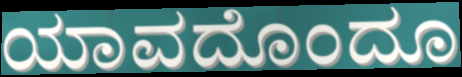
ಯಾವದೊಂದೂ